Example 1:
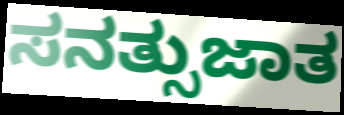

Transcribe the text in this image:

ಸನತ್ಸುಜಾತ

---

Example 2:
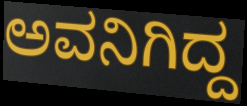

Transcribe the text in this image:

ಅವನಿಗಿದ್ದ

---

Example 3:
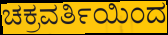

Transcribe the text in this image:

ಚಕ್ರವರ್ತಿಯಿಂದ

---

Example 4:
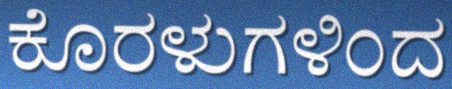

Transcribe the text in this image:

ಕೊರಳುಗಳಿಂದ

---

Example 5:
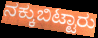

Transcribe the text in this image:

ನಕ್ಕುಬಿಟ್ಟಾರು